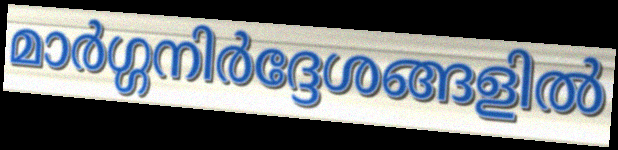
മാർഗ്ഗനിർദ്ദേശങ്ങളിൽ